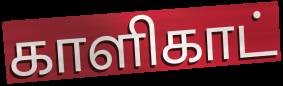
காளிகாட்